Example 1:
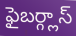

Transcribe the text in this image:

ఫైబర్గ్లాస్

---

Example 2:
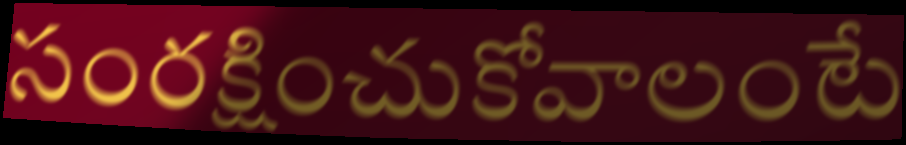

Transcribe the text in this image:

సంరక్షించుకోవాలంటే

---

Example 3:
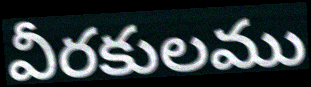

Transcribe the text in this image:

వీరకులము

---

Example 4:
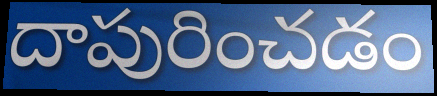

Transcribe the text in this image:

దాపురించడం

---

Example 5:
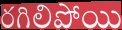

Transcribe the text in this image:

రగిలిపోయి